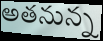
అతనున్న